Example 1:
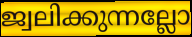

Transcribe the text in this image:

ജ്വലിക്കുന്നല്ലോ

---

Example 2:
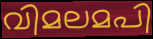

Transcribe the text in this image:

വിമലമപി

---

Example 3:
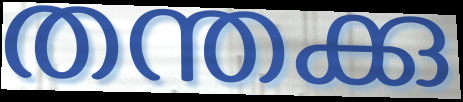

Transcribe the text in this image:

തന്തക്കു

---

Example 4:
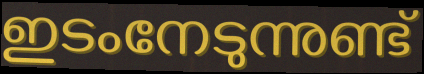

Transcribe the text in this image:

ഇടംനേടുന്നുണ്ട്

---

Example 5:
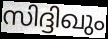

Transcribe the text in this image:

സിദ്ദിഖും